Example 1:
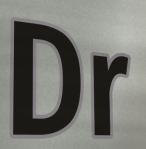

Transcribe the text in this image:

Dr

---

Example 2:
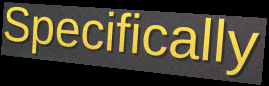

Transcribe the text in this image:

Specifically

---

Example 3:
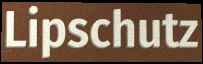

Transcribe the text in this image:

Lipschutz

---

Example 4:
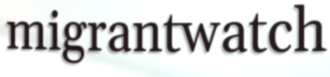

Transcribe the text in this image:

migrantwatch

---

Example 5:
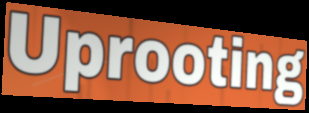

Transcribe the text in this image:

Uprooting